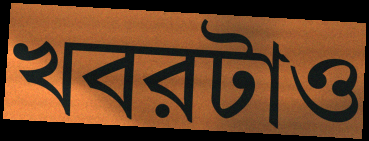
খবরটাও